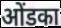
ओंडका